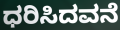
ಧರಿಸಿದವನೆ